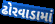
ઢોરવાડામાં